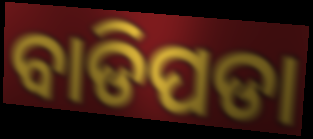
ବାଡିପଡା